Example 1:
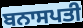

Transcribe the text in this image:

ਬਨਾਸਪਤੀ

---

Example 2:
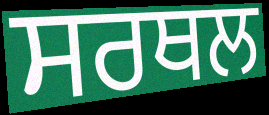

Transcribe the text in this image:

ਸਰਥਲ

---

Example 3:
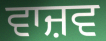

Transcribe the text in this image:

ਵਾਜ਼ਵ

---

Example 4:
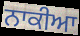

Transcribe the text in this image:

ਨਾਕੀਆ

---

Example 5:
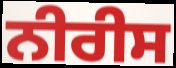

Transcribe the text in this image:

ਨੀਰੀਸ